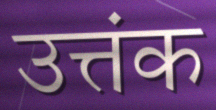
उत्तंक